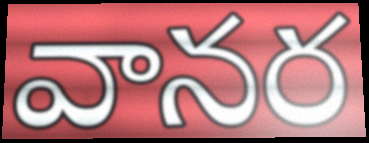
వానర